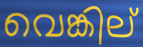
വെങ്കില്